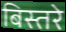
बिस्तरे